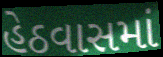
હેઠવાસમાં